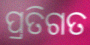
ପ୍ରତିଗତ